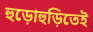
হুড়োহুড়িতেই